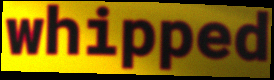
whipped